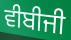
ਵੀਬੀਜੀ